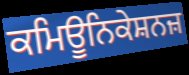
ਕਮਿਊਨਿਕੇਸ਼ਨਜ਼